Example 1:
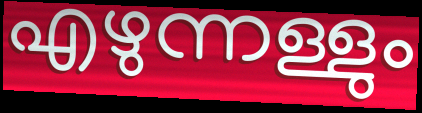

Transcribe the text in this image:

എഴുന്നള്ളും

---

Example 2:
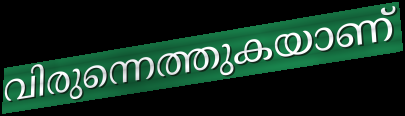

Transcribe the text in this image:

വിരുന്നെത്തുകയാണ്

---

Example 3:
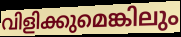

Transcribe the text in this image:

വിളിക്കുമെങ്കിലും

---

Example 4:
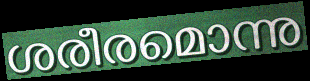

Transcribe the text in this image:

ശരീരമൊന്നു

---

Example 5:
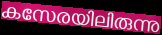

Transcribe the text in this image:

കസേരയിലിരുന്നു